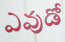
ఎవుడో